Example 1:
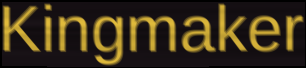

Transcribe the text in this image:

Kingmaker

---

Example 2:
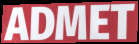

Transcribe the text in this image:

ADMET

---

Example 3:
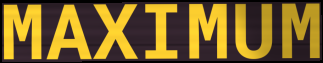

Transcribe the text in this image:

MAXIMUM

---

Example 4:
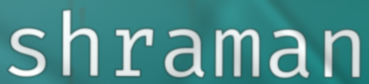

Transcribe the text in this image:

shraman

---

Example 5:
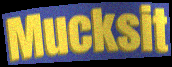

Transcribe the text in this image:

Mucksit